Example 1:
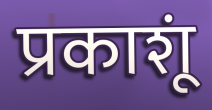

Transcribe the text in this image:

प्रकाशूं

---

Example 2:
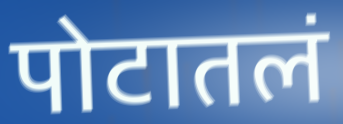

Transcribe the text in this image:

पोटातलं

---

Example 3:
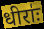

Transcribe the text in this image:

धीराः॑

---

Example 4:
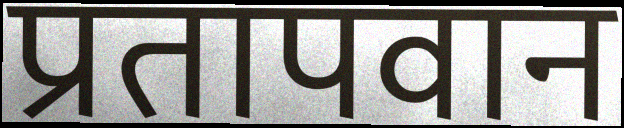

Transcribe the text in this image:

प्रतापवान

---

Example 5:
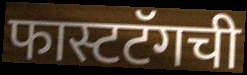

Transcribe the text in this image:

फास्टटॅगची